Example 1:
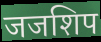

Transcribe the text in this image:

जजशिप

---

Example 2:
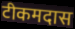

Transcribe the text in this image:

टीकमदास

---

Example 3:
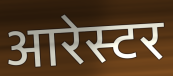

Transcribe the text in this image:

आरेस्टर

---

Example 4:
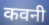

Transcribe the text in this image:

कवनी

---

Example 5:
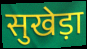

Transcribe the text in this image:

सुखेड़ा